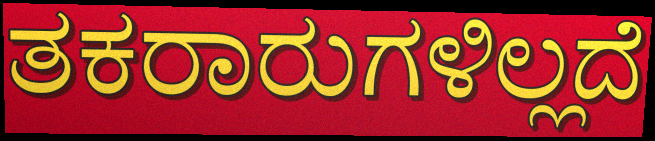
ತಕರಾರುಗಳಿಲ್ಲದೆ